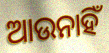
ଆଉନାହିଁ